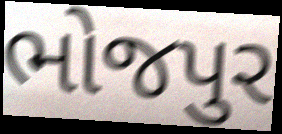
ભોજપુર